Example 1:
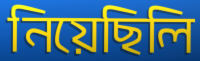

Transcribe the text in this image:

নিয়েছিলি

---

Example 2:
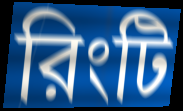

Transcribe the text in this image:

রিংটি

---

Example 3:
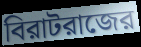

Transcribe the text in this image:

বিরাটরাজের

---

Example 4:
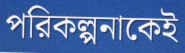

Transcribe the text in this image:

পরিকল্পনাকেই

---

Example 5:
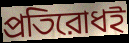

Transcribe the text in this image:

প্রতিরোধই